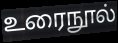
உரைநூல்